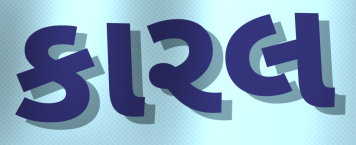
કારલ